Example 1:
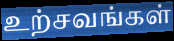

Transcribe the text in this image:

உற்சவங்கள்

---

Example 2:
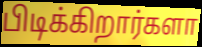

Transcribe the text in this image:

பிடிக்கிறார்களா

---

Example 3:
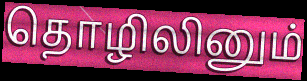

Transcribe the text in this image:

தொழிலினும்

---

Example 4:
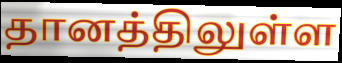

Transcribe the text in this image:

தானத்திலுள்ள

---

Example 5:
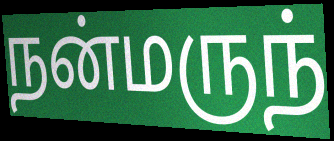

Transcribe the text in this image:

நன்மருந்